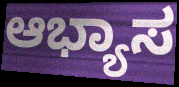
ಆಭ್ಯಾಸ